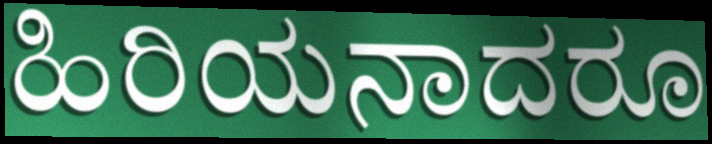
ಹಿರಿಯನಾದರೂ